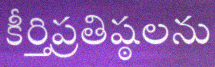
కీర్తిప్రతిష్ఠలను